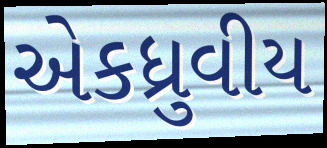
એકધ્રુવીય